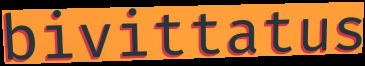
bivittatus